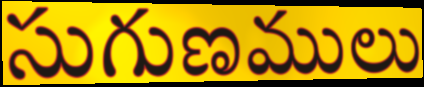
సుగుణములు